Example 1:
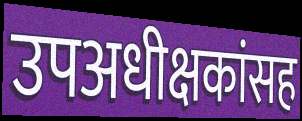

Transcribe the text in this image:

उपअधीक्षकांसह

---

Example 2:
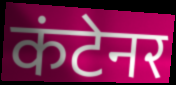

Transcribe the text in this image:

कंटेनर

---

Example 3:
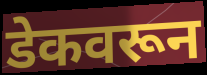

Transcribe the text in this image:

डेकवरून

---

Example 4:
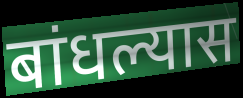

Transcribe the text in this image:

बांधल्यास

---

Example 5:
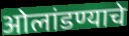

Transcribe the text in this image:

ओलांडण्याचे